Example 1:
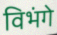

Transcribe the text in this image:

विभंगे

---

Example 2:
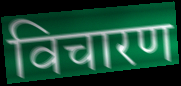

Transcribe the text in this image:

विचारण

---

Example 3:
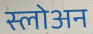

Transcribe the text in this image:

स्लोअन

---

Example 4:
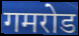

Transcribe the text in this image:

गमरोड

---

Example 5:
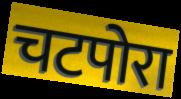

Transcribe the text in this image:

चटपोरा